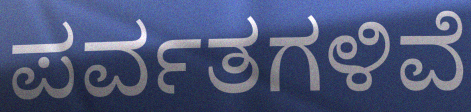
ಪರ್ವತಗಳಿವೆ